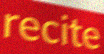
recite